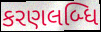
કરણલબ્ધિ